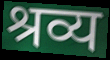
श्रव्य